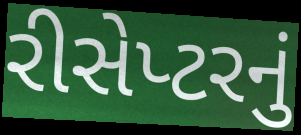
રીસેપ્ટરનું